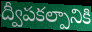
ద్వీపకల్పానికి